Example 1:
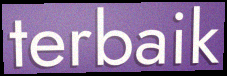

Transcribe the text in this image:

terbaik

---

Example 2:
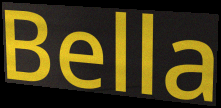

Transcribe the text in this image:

Bella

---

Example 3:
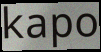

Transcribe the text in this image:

kapo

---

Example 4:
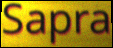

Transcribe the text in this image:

Sapra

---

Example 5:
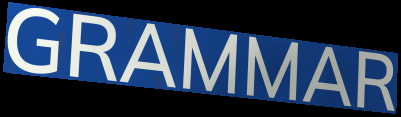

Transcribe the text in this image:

GRAMMAR